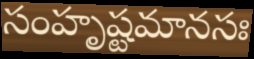
సంహృష్టమానసః